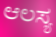
ಆಲಸ್ಯ